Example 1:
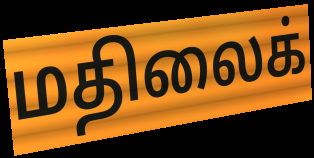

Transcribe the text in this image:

மதிலைக்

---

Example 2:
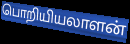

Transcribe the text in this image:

பொறியியலாளன்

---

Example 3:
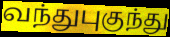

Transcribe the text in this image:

வந்துபுகுந்து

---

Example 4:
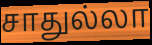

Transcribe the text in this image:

சாதுல்லா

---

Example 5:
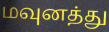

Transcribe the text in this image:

மவுனத்து